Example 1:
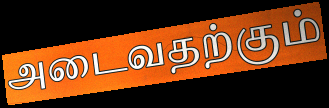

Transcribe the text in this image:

அடைவதற்கும்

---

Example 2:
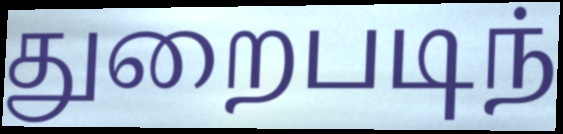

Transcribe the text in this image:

துறைபடிந்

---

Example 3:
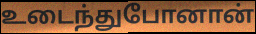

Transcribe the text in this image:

உடைந்துபோனான்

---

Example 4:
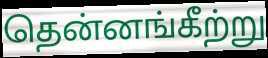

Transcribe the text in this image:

தென்னங்கீற்று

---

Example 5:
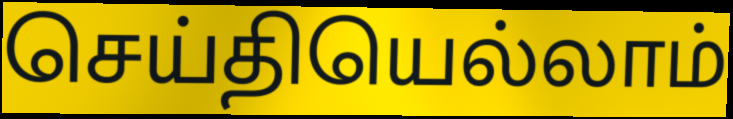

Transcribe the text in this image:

செய்தியெல்லாம்